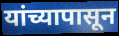
यांच्यापासून